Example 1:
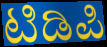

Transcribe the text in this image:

ಟಿಡಿಪಿ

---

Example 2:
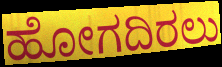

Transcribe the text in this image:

ಹೋಗದಿರಲು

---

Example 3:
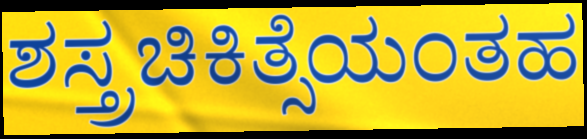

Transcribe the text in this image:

ಶಸ್ತ್ರಚಿಕಿತ್ಸೆಯಂತಹ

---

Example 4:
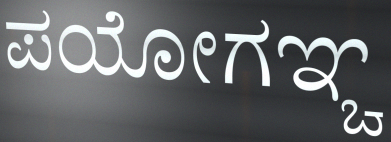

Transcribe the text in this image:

ಪಯೋಗಞ್ಚ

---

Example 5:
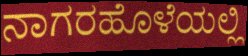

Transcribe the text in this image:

ನಾಗರಹೊಳೆಯಲ್ಲಿ